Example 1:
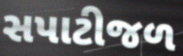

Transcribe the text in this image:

સપાટીજળ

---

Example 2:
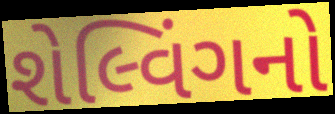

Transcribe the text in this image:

શેલ્વિંગનો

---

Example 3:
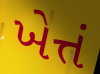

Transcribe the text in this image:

ખેત્તં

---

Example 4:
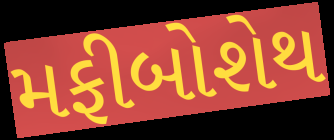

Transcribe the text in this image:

મફીબોશેથ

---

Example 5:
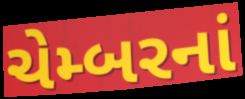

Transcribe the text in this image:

ચેમ્બરનાં